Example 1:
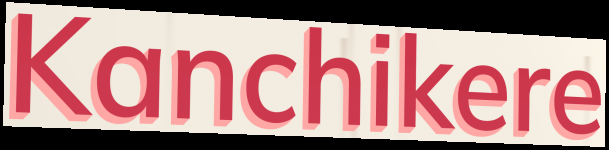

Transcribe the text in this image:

Kanchikere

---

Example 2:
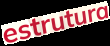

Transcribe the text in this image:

estrutura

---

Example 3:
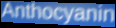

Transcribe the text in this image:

Anthocyanin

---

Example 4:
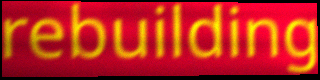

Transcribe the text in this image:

rebuilding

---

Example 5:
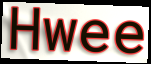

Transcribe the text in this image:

Hwee